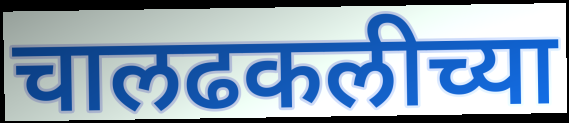
चालढकलीच्या